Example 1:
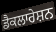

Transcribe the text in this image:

ਡੈਕਲਾਰੇਸ਼ਨ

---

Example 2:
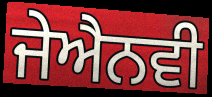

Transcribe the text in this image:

ਜੇਐਨਵੀ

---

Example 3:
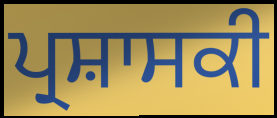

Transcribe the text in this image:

ਪ੍ਰਸ਼ਾਸਕੀ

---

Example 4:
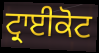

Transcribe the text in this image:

ਟ੍ਰਾਈਕੋਟ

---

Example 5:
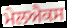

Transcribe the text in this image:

ਮੇਲਐਕਸ